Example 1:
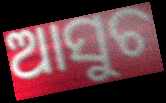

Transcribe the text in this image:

ଆସୁଚ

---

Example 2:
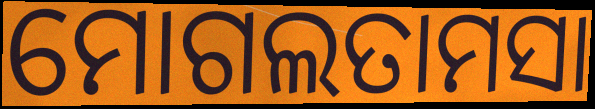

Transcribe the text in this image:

ମୋଗଲତାମସା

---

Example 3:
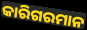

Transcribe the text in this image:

କାରିଗରମାନ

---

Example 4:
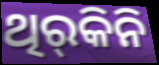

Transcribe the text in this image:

ଥିର୍‍କିନି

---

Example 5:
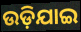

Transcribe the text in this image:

ଉଡ଼ିଯାଇ